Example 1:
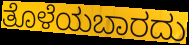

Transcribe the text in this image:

ತೊಳೆಯಬಾರದು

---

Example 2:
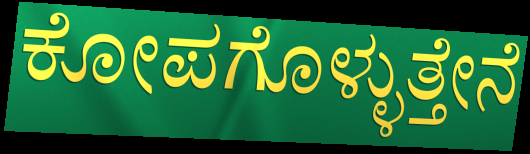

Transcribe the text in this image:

ಕೋಪಗೊಳ್ಳುತ್ತೇನೆ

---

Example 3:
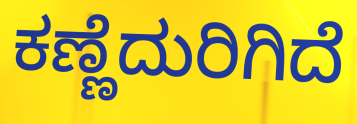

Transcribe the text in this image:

ಕಣ್ಣೆದುರಿಗಿದೆ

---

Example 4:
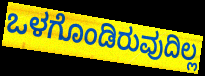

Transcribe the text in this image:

ಒಳಗೊಂಡಿರುವುದಿಲ್ಲ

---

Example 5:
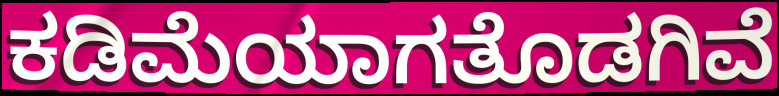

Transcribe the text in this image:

ಕಡಿಮೆಯಾಗತೊಡಗಿವೆ